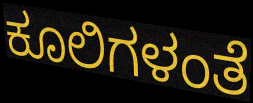
ಕೂಲಿಗಳಂತೆ